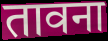
तावना